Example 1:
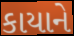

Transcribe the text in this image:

કાયાને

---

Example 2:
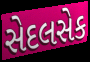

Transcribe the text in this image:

સેદલસેક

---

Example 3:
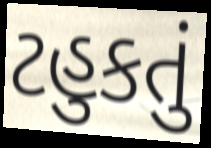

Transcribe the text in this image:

ટહુકતું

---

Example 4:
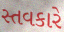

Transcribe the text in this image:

સ્તવકારે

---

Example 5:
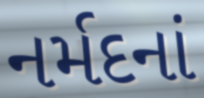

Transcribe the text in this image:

નર્મદનાં